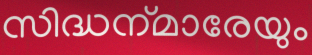
സിദ്ധന്‌മാരേയും